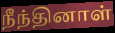
நீந்தினாள்